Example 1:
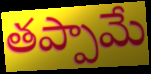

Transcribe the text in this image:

తప్పామే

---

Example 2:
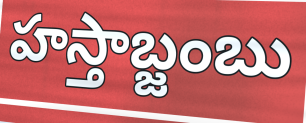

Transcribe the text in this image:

హస్తాబ్జంబు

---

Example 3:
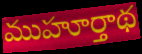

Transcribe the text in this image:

ముహూర్తాథ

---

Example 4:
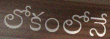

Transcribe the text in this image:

లోకంలోనే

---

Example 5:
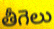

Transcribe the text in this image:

తీగెలు